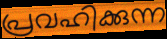
പ്രവഹിക്കുന്ന